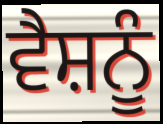
ਵੈਸ਼ਨੂੰ